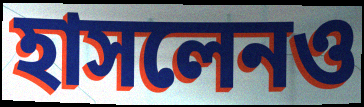
হাসলেনও